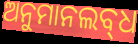
ଅନୁମାନଲବ୍‌ଧ